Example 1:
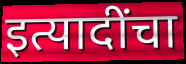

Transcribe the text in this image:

इत्यादींचा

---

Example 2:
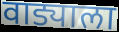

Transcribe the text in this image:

वाड्याला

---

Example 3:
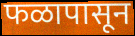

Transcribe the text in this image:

फळापासून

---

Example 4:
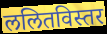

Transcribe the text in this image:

ललितविस्तर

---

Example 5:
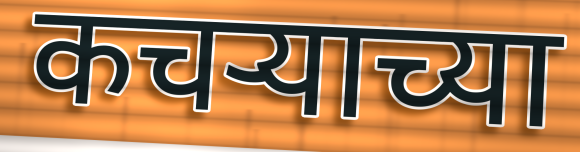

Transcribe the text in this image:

कचर्‍याच्या